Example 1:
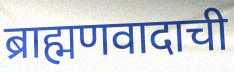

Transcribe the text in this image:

ब्राह्मणवादाची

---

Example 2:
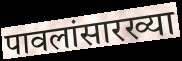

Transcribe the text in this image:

पावलांसारख्या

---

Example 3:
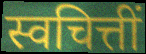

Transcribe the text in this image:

स्वचित्तीं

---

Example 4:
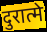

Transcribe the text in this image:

दुरात्मे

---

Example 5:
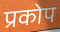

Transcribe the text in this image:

प्रकोप